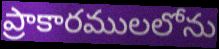
ప్రాకారములలోను